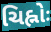
ચિહ્નોઃ